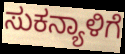
ಸುಕನ್ಯಾಳಿಗೆ